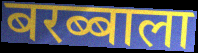
बरब्बाला